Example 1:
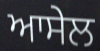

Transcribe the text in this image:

ਆਸੇਲ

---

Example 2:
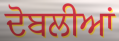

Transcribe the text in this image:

ਦੋਬਲੀਆਂ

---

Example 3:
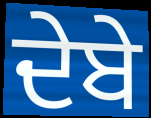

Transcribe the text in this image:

ਦੇਬੇ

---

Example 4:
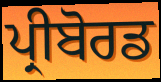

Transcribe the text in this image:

ਪ੍ਰੀਬੋਰਡ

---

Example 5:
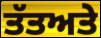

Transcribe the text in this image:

ਤੱਤਅਤੇ